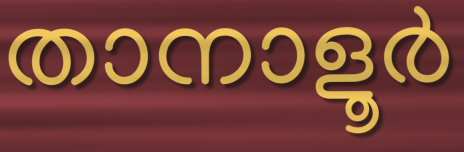
താനാളൂർ